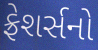
ફ્રેશર્સનો